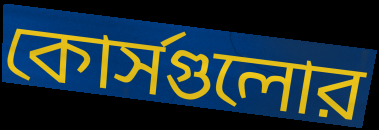
কোর্সগুলোর